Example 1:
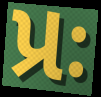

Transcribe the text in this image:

પ્રઃ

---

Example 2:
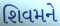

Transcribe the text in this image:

શિવમને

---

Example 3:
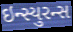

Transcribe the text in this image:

ઇન્સ્યુરન્સ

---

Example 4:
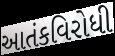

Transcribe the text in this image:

આતંકવિરોધી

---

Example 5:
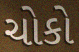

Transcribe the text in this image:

ચોકો